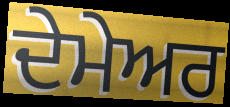
ਦੇਮੇਅਰ